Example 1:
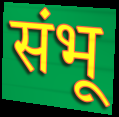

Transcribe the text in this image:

संभू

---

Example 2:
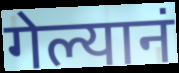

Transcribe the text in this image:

गेल्यानं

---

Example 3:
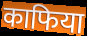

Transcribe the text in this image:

काफिया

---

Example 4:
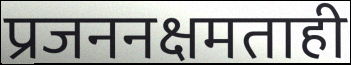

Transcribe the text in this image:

प्रजननक्षमताही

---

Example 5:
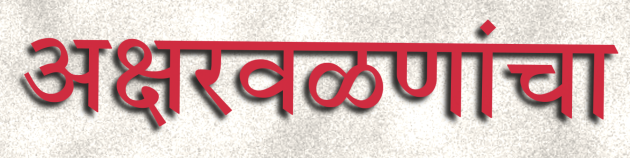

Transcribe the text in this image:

अक्षरवळणांचा